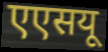
एएसयू